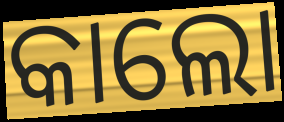
କାଲୋ